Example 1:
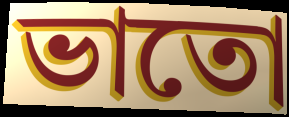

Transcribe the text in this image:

ভাতো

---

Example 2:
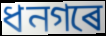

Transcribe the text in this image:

ধনগৰে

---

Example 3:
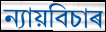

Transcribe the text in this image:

ন্যায়বিচাৰ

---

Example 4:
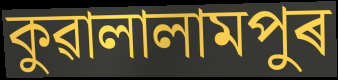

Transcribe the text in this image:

কুৱালালামপুৰ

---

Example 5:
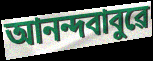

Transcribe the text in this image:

আনন্দবাবুৱে